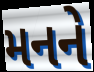
મનને